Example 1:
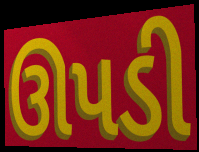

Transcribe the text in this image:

ઊપડી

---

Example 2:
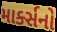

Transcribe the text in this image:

માર્ક્સનો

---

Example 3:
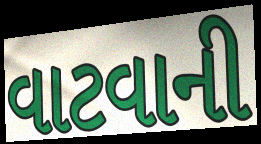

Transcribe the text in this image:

વાટવાની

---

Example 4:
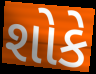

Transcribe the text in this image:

શોકે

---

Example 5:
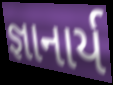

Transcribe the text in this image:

જ્ઞાનાર્ય